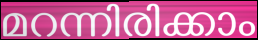
മറന്നിരിക്കാം